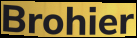
Brohier